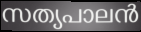
സത്യപാലൻ